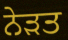
ਨੇੜਤ